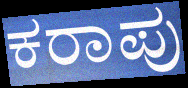
ಕರಾಪು